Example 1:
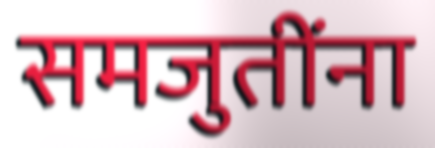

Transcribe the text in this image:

समजुतींना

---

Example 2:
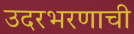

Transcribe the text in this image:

उदरभरणाची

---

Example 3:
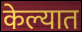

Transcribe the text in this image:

केल्यात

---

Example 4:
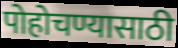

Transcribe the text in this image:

पोहोचण्यासाठी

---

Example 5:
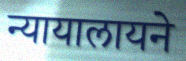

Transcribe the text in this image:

न्यायालायने